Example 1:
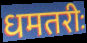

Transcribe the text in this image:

धमतरीः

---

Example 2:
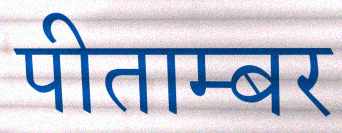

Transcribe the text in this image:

पीताम्बर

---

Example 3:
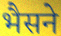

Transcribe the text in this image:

भैसने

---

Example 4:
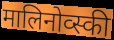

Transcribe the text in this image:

मालिनोव्स्की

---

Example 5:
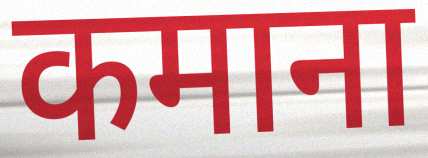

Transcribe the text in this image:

कमाना